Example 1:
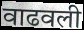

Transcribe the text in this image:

वाढवली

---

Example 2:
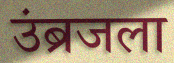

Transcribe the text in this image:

उंब्रजला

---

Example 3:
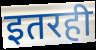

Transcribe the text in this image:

इतरही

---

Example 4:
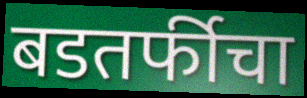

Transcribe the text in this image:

बडतर्फीचा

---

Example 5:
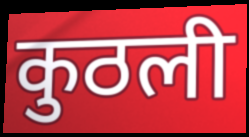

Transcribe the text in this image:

कुठली